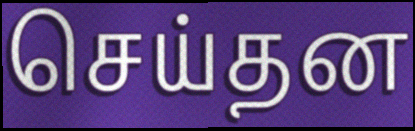
செய்தன